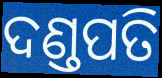
ଦଣ୍ଡପତି